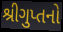
શ્રીગુપ્તનો